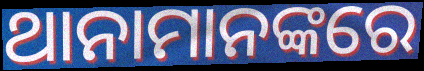
ଥାନାମାନଙ୍କରେ